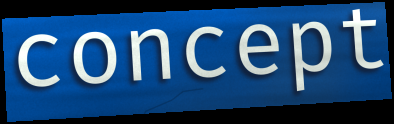
concept